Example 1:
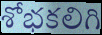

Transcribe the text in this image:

శోభకలిగి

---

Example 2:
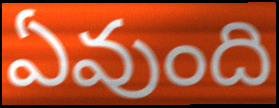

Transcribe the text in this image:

ఏవుంది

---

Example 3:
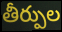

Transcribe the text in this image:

తీర్పుల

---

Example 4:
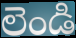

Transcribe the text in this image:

లెండి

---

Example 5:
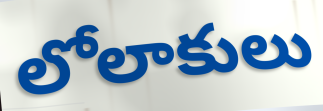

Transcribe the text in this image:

లోలాకులు